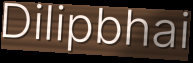
Dilipbhai